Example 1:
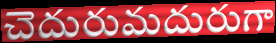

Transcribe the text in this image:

చెదురుమదురుగా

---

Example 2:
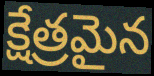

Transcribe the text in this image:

క్షేత్రమైన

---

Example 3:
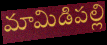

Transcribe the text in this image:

మామిడిపల్లి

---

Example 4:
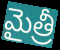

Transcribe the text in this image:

మైత్రీ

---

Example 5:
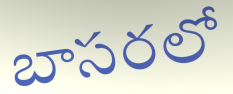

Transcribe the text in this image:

బాసరలో